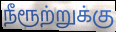
நீரூற்றுக்கு